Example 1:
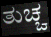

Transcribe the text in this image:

ತುಚ್ಚ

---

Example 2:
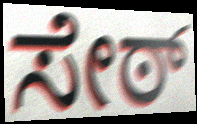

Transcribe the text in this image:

ಸೇಠ್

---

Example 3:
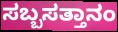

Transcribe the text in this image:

ಸಬ್ಬಸತ್ತಾನಂ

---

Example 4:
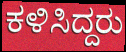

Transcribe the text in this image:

ಕಳಿಸಿದ್ದರು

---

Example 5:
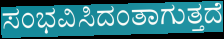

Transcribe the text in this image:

ಸಂಭವಿಸಿದಂತಾಗುತ್ತದೆ